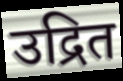
उद्रित